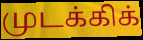
முடக்கிக்